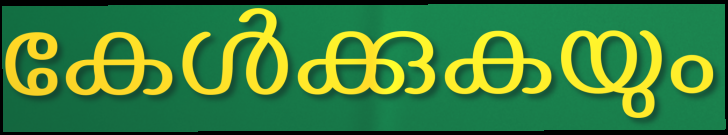
കേൾക്കുകയും